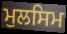
ਮੁਲਸਿਮ